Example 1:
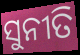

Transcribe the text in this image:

ସୁନୀତି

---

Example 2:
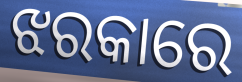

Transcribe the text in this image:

ଝରକାରେ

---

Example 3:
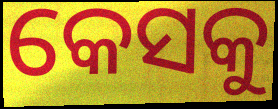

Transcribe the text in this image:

କେସକୁ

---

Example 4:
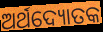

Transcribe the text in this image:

ଅର୍ଥଦ୍ୟୋତକ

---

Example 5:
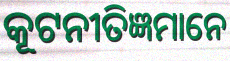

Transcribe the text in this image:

କୂଟନୀତିଜ୍ଞମାନେ